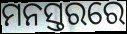
ମନସ୍ତରରେ